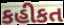
કહીકત